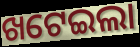
ଖଟେଇଲା